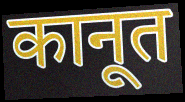
कानूत